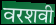
वरशवी